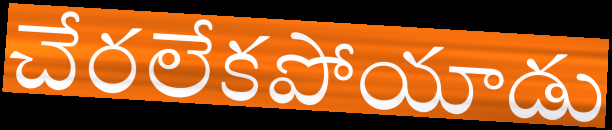
చేరలేకపోయాడు